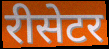
रीसेटर